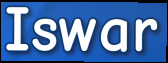
Iswar